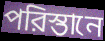
পরিস্তানে